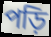
পড়ি